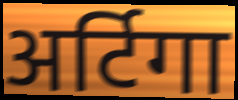
अर्टिगा